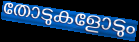
തോടുകളോടും